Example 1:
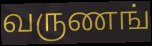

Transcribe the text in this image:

வருணங்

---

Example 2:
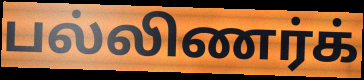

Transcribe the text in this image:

பல்லிணர்க்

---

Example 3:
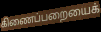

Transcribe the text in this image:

கிணைப்பறையைக்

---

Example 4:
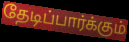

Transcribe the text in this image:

தேடிப்பார்க்கும்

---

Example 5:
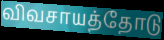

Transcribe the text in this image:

விவசாயத்தோடு